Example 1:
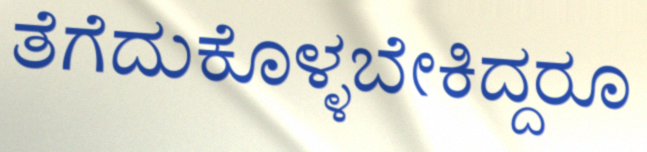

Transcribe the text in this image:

ತೆಗೆದುಕೊಳ್ಳಬೇಕಿದ್ದರೂ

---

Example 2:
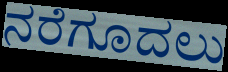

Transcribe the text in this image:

ನರೆಗೂದಲು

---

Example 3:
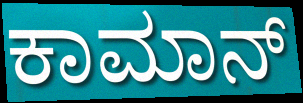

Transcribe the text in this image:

ಕಾಮಾನ್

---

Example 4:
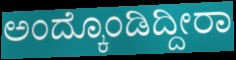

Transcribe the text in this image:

ಅಂದ್ಕೊಂಡಿದ್ದೀರಾ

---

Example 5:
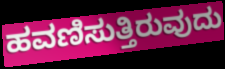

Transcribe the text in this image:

ಹವಣಿಸುತ್ತಿರುವುದು